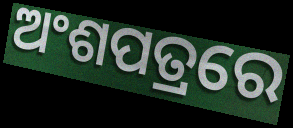
ଅଂଶପତ୍ରରେ